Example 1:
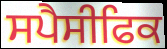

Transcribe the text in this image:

ਸਪੈਸੀਫਿਕ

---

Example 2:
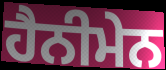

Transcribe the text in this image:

ਹੈਨੀਮੇਨ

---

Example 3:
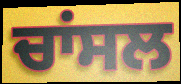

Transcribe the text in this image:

ਚਾਂਸਲ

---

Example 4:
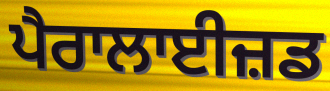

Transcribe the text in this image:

ਪੈਰਾਲਾਈਜ਼ਡ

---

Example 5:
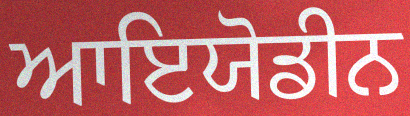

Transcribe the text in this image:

ਆਇਯੋਡੀਨ